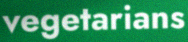
vegetarians